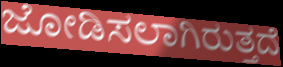
ಜೋಡಿಸಲಾಗಿರುತ್ತದೆ